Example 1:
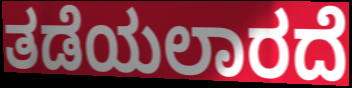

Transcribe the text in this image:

ತಡೆಯಲಾರದೆ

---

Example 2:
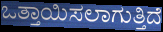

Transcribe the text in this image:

ಒತ್ತಾಯಿಸಲಾಗುತ್ತಿದೆ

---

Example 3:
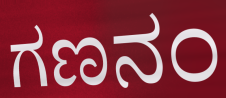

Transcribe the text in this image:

ಗಣನಂ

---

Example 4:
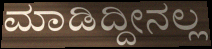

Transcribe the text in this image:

ಮಾಡಿದ್ದೀನಲ್ಲ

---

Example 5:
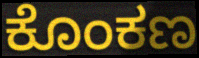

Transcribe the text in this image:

ಕೊಂಕಣ